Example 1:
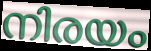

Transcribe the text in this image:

നിരയം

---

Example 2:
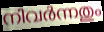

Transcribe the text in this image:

നിവർന്നതും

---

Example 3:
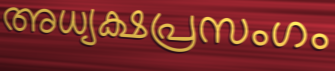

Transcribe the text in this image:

അധ്യക്ഷപ്രസംഗം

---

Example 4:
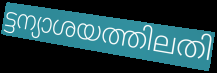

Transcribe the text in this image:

ട്ടന്യാശയത്തിലതി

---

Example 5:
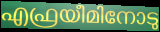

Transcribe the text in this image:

എഫ്രയീമിനോടു